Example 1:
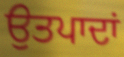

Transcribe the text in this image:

ਉਤਪਾਦਾਂ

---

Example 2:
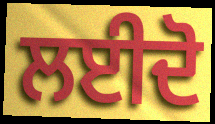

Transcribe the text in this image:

ਲਈਦੋ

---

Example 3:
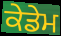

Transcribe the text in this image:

ਕੇਡੇਮ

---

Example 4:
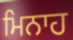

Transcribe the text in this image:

ਮਿਨਾਹ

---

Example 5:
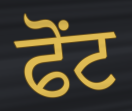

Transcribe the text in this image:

ਫੋਂਟ